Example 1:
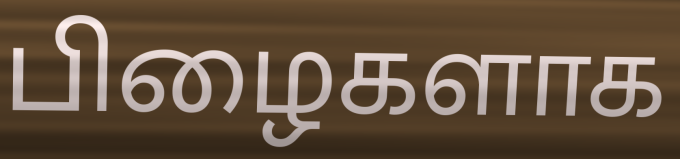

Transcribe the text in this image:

பிழைகளாக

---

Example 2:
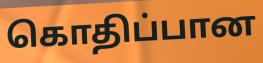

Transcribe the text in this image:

கொதிப்பான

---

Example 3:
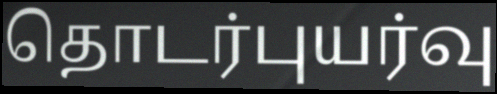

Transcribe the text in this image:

தொடர்புயர்வு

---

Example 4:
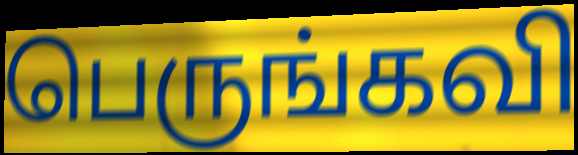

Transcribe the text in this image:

பெருங்கவி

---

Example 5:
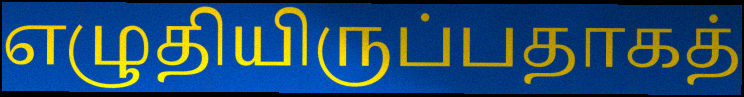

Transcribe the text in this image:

எழுதியிருப்பதாகத்